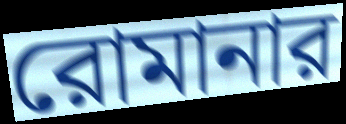
রোমানার